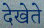
देखेते